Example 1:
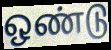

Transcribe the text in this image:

ஒண்டு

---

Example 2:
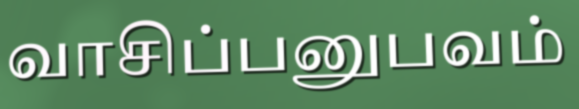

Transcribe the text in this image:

வாசிப்பனுபவம்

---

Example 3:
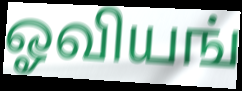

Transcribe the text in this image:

ஓவியங்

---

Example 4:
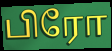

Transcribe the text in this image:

பிரோ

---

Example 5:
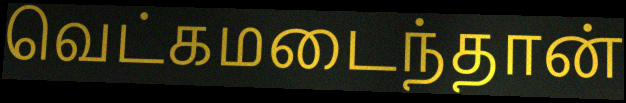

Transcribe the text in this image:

வெட்கமடைந்தான்